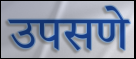
उपसणे